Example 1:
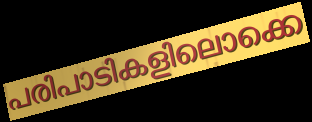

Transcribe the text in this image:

പരിപാടികളിലൊക്കെ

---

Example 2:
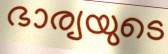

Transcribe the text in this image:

ഭാര്യയുടെ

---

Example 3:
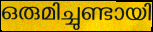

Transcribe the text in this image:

ഒരുമിച്ചുണ്ടായി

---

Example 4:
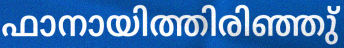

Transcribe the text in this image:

ഫാനായിത്തിരിഞ്ഞു്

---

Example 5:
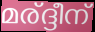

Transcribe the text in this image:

മര്ദ്ദീന്